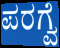
ಪರಗ್ವೆ